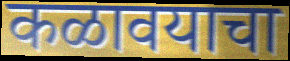
कळावयाचा